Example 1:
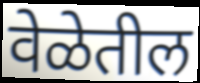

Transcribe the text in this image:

वेळेतील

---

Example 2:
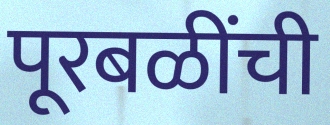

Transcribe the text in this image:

पूरबळींची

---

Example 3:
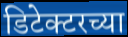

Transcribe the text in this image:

डिटेक्टरच्या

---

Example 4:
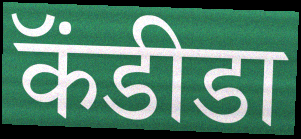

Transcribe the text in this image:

कॅंडीडा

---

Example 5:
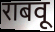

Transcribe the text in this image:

राबवू